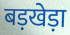
बड़खेड़ा